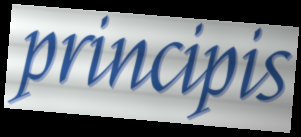
principis